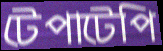
টেপাটেপি